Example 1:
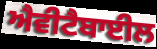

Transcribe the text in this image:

ਐਵੀਟੈਬਾਈਲ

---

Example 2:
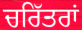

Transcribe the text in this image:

ਚਰਿੱਤਰਾਂ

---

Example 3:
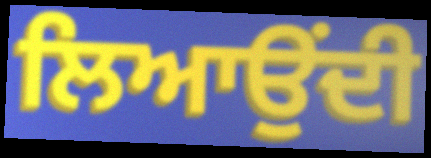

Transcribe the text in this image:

ਲਿਆਉਂਦੀ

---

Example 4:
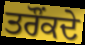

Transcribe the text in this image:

ਤਰੌਂਕਦੇ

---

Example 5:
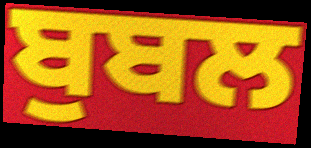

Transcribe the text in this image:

ਬੁਬਲ